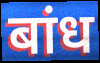
बांध